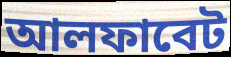
আলফাবেট